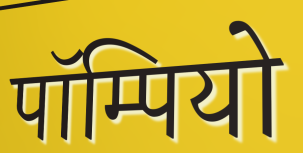
पॉम्पियो